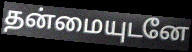
தன்மையுடனே